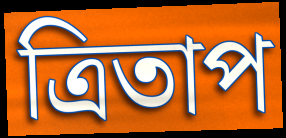
ত্রিতাপ